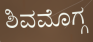
ಶಿವಮೊಗ್ಗ